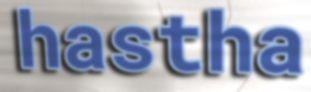
hastha